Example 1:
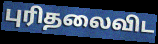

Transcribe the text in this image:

புரிதலைவிட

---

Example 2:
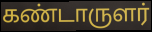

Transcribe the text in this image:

கண்டாருளர்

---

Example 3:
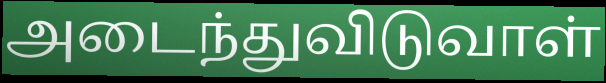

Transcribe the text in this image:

அடைந்துவிடுவாள்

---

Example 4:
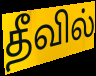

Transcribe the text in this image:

தீவில்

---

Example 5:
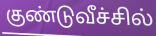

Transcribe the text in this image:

குண்டுவீச்சில்